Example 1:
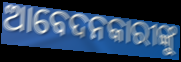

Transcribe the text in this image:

ଆବେଦନକାରୀଙ୍କୁ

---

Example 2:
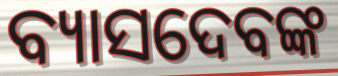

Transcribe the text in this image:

ବ୍ୟାସଦେବଙ୍କ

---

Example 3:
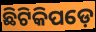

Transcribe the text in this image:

ଛିଟିକିପଡ଼େ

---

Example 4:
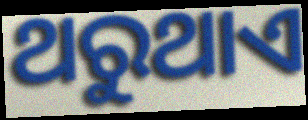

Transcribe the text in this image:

ଥରୁଥାଏ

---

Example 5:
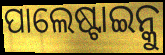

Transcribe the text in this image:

ପାଲେଷ୍ଟାଇନ୍କୁ